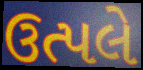
ઉત્પલે